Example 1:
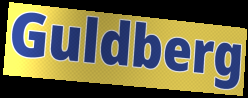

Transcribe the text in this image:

Guldberg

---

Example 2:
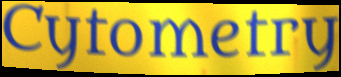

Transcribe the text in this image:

Cytometry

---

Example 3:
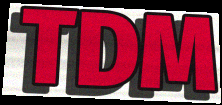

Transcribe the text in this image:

TDM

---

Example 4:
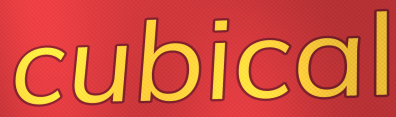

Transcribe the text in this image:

cubical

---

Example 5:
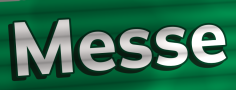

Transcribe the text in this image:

Messe